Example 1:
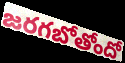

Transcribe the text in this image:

జరగబోతోందో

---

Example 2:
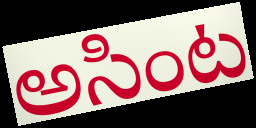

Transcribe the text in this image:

అసింట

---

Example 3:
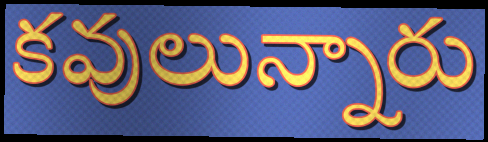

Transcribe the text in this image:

కవులున్నారు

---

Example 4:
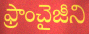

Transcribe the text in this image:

ఫ్రాంచైజీని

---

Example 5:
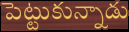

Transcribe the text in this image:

పెట్టుకున్నాడు